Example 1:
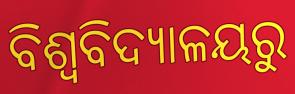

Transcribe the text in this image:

ବିଶ୍ୱବିଦ୍ୟାଳୟରୁ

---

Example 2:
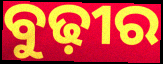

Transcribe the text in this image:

ବୁଢ଼ୀର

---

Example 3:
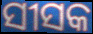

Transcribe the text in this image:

ସୀସକ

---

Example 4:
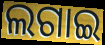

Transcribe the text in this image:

ଲଗାଇ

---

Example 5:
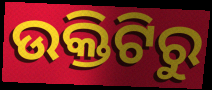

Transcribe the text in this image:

ଉକ୍ତିଟିରୁ